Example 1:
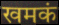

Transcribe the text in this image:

खमकं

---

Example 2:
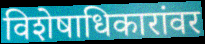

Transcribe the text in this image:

विशेषाधिकारांवर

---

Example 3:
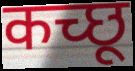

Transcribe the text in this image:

कच्छू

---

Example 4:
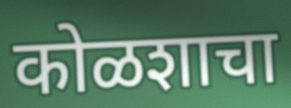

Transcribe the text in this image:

कोळशाचा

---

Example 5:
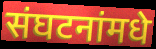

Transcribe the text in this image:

संघटनांमधे